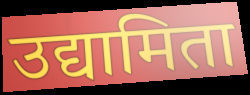
उद्यामिता